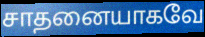
சாதனையாகவே